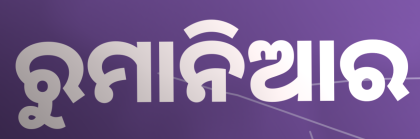
ରୁମାନିଆର